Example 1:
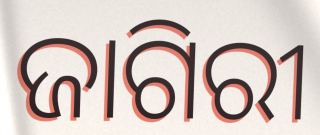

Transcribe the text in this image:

ଜାଗିରୀ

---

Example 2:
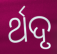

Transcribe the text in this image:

ର୍ଥଦୃ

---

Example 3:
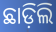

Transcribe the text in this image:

ଛାଡ଼ିଲି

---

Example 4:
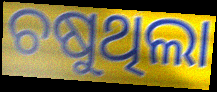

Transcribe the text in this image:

ଚଷୁଥିଲା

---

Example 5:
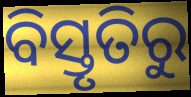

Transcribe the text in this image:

ବିସ୍ତୃତିରୁ